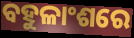
ବହୁଳାଂଶରେ